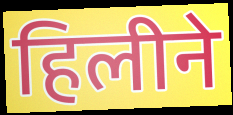
हिलीने